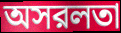
অসরলতা